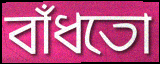
বাঁধতো